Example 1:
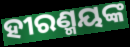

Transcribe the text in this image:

ହୀରଣ୍ମୟଙ୍କ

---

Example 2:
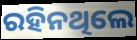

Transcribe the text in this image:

ରହିନଥିଲେ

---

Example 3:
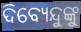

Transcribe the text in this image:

ଦିବ୍ୟେନ୍ଦୁଙ୍କୁ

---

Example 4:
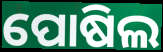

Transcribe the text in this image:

ପୋଷିଲ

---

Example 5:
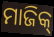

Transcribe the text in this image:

ମାଜିକ୍